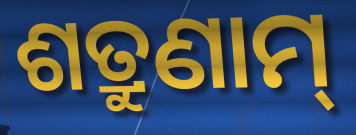
ଶତ୍ରୁଣାମ୍